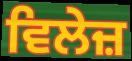
ਵਿਲੇਜ਼